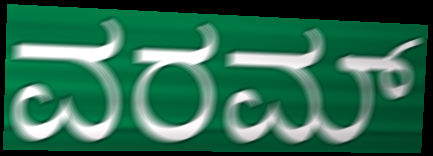
ವರಮ್